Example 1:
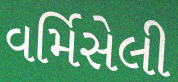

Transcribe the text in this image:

વર્મિસેલી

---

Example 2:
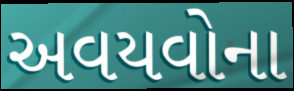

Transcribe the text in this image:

અવયવોના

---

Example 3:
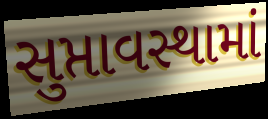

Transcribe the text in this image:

સુપ્તાવસ્થામાં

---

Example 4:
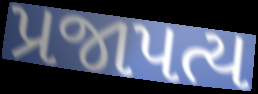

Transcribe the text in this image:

પ્રજાપત્ય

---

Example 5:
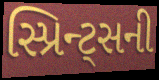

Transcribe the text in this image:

સ્પ્રિન્ટ્સની